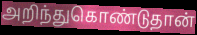
அறிந்துகொண்டுதான்